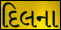
દિલના